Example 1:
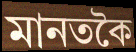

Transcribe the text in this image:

মানতকৈ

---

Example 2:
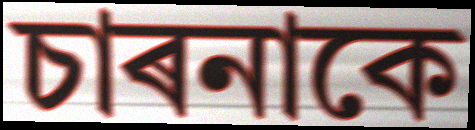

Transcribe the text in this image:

চাৰনাকে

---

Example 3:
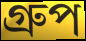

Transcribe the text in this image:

গ্ৰুপ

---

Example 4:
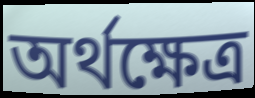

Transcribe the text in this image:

অৰ্থক্ষেত্ৰ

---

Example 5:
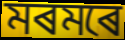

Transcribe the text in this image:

মৰমৰে